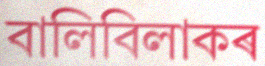
বালিবিলাকৰ